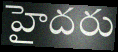
హైదరు